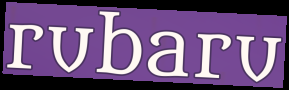
rubaru